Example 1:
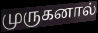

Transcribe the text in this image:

முருகனால்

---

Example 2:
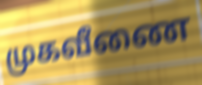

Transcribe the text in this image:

முகவீணை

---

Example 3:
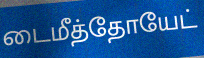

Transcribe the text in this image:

டைமீத்தோயேட்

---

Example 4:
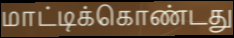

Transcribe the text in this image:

மாட்டிக்கொண்டது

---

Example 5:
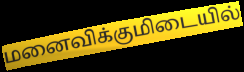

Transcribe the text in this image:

மனைவிக்குமிடையில்